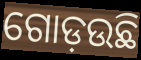
ଗୋଡ଼ଉଛି